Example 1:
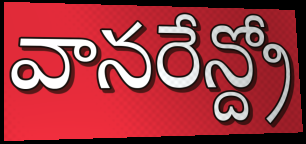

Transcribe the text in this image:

వానరేన్ద్రో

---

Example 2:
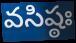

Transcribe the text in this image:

వసిష్ఠః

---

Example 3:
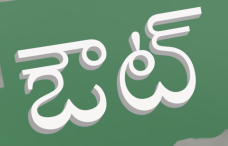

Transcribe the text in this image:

ఔట్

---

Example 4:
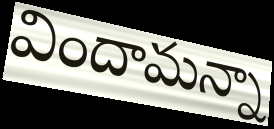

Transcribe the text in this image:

విందామన్నా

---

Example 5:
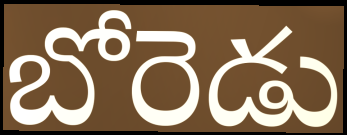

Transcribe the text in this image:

బోరెడు